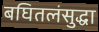
बघितलंसुद्धा